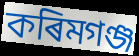
কৰিমগঞ্জ